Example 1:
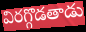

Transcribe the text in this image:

విరగ్గొడతాడు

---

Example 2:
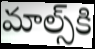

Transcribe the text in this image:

మాల్స్‌కి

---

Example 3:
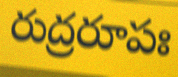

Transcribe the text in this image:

రుద్రరూపః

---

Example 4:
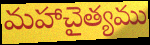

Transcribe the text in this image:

మహాచైత్యము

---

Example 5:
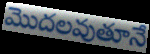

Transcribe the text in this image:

మొదలవుతూనే